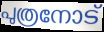
പുത്രനോട്